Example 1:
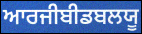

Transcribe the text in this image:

ਆਰਜੀਬੀਡਬਲਯੂ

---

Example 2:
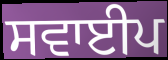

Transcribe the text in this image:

ਸਵਾਈਪ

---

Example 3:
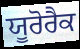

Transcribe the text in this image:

ਯੂਰੋਰੈਕ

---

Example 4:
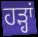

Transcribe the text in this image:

ਹੜ੍ਹਾਂ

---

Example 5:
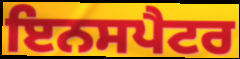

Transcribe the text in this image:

ਇਨਸਪੈਟਰ